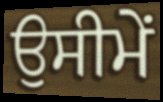
ਉਸੀਮੇਂ